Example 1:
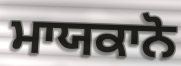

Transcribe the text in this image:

ਮਾਯਕਾਨੋ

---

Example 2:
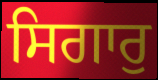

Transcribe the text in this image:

ਸਿਗਾਰੁ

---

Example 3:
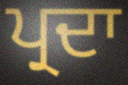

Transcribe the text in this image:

ਪ੍ਰਦਾ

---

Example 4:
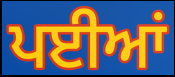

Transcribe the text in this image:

ਪਈਆਂ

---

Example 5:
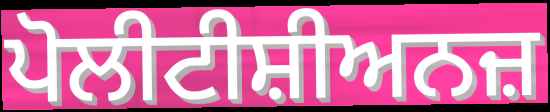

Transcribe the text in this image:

ਪੋਲੀਟੀਸ਼ੀਅਨਜ਼